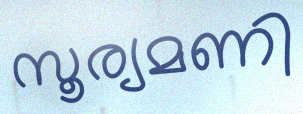
സൂര്യമണി